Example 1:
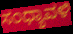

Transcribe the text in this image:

ಸಂಧ್ಯಾವಳಿ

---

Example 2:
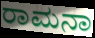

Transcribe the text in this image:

ರಾಮನಾ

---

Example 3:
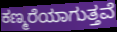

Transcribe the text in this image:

ಕಣ್ಮರೆಯಾಗುತ್ತವೆ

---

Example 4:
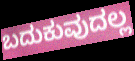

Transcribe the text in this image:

ಬದುಕುವುದಲ್ಲ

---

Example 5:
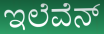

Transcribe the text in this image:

ಇಲೆವೆನ್